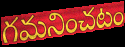
గమనించటం